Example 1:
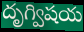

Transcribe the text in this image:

దృగ్విషయ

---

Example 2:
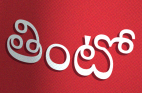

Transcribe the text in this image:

తింటో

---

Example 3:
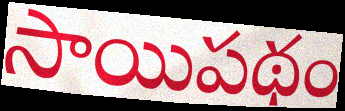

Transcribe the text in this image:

సాయిపథం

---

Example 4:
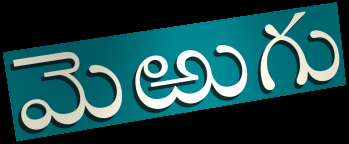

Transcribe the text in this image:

మెఱుగు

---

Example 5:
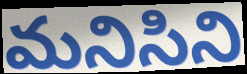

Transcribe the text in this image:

మనిసిని